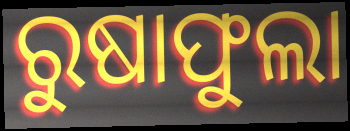
ରୁଷାଫୁଲା